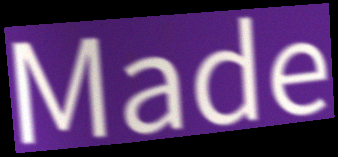
Made